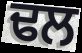
ਢਲ